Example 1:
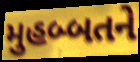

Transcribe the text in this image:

મુહબ્બતને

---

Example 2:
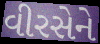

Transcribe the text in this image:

વીરસેને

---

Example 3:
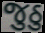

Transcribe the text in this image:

જુઠુ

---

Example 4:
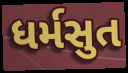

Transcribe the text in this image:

ધર્મસુત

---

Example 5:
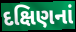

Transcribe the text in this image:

દક્ષિણનાં